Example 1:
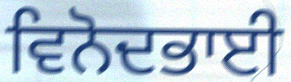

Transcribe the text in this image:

ਵਿਨੋਦਭਾਈ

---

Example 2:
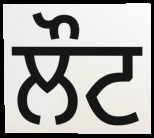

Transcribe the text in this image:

ਲੌਟ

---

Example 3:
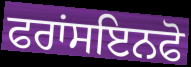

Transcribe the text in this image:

ਫਰਾਂਸਇਨਫੋ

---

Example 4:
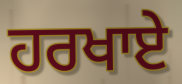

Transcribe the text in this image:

ਹਰਖਾਏ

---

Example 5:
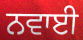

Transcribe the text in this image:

ਨਵਾਈ